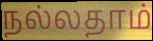
நல்லதாம்